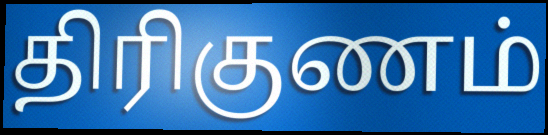
திரிகுணம்